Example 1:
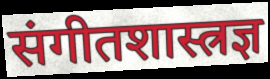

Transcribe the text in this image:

संगीतशास्त्रज्ञ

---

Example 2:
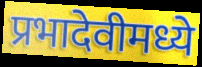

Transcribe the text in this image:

प्रभादेवीमध्ये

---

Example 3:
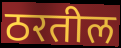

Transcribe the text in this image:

ठरतील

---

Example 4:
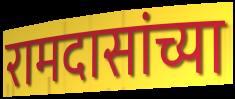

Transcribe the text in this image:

रामदासांच्या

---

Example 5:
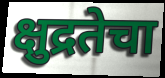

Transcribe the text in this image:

क्षुद्रतेचा